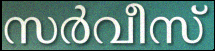
സർവീസ്